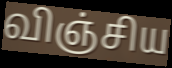
விஞ்சிய